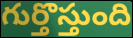
గుర్తొస్తుంది